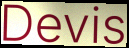
Devis